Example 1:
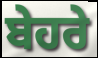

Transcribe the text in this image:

ਬੇਹਰੇ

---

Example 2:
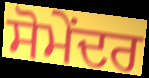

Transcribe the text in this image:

ਸੋਮੇਂਦਰ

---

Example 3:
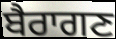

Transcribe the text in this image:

ਬੈਰਾਗਣ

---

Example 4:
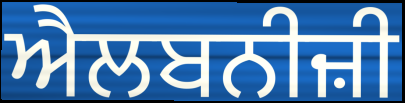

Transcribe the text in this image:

ਐਲਬਨੀਜ਼ੀ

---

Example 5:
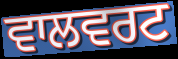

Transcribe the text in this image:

ਵਾਲਵਰਟ